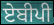
ਏਬੀਪੀ